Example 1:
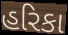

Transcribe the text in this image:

હરિકા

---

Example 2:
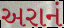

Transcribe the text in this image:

અરાનં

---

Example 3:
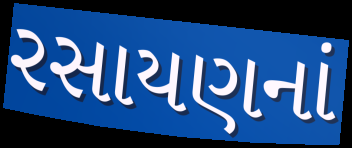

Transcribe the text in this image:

રસાયણનાં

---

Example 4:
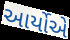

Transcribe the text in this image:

આર્યોએ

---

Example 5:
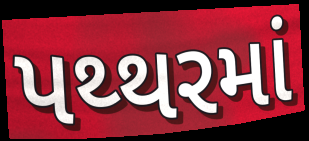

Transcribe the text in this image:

પથ્થરમાં